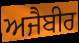
ਅਜੈਬੀਰ